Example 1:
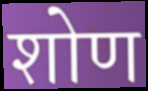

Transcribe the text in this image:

शोण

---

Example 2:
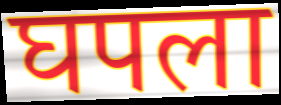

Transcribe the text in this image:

घपला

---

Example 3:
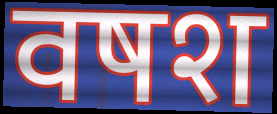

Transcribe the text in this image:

वषश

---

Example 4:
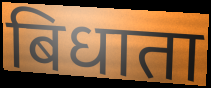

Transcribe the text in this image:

बिधाता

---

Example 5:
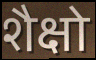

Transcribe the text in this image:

शैक्षो